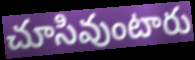
చూసివుంటారు